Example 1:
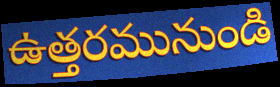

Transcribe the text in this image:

ఉత్తరమునుండి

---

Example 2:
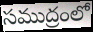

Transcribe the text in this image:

సముద్రంలో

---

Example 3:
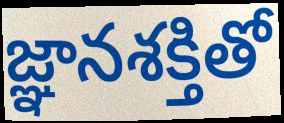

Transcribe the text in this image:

జ్ఞానశక్తితో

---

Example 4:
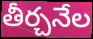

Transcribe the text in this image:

తీర్చనేల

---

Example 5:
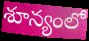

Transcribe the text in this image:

శూన్యంలో